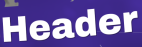
Header